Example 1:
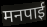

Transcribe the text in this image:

मनपाई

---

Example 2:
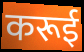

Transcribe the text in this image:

करूई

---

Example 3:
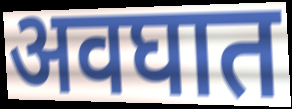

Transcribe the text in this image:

अवघात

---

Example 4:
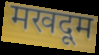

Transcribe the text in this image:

मखदूम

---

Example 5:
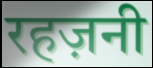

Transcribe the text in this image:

रहज़नी